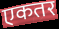
एकतर